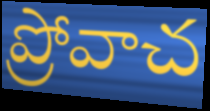
ప్రోవాచ